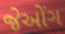
જેઓંગ